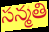
సన్మతి